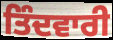
ਤਿੰਦਵਾਰੀ